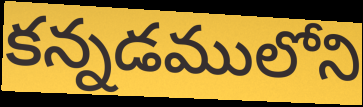
కన్నడములోని